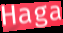
Haga